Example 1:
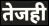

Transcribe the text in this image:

तेजही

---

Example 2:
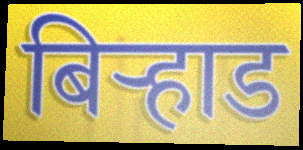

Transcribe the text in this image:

बिऱ्हाड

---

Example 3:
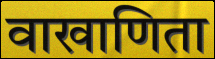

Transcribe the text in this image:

वाखाणिता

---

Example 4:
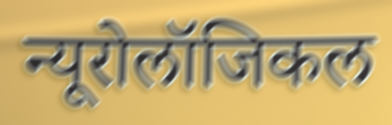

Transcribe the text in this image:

न्यूरोलॉजिकल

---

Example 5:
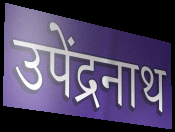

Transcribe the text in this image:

उपेंद्रनाथ